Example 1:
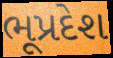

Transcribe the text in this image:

ભૂપ્રદેશ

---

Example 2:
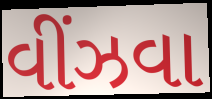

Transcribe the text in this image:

વીંઝવા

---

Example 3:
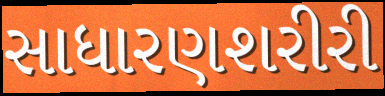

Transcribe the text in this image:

સાધારણશરીરી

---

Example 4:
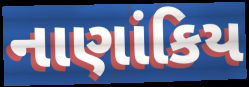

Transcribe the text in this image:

નાણાંકિય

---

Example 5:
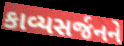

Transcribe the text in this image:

કાવ્યસર્જનને